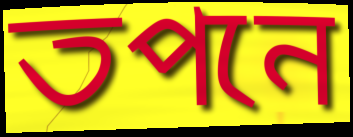
তপনে